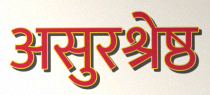
असुरश्रेष्ठ